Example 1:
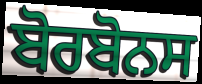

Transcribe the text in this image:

ਬੋਰਬੋਨਸ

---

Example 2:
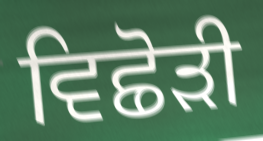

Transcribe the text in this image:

ਵਿਛੋੜੀ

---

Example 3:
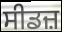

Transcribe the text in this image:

ਸੀਡਜ਼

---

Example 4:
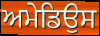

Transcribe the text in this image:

ਅਮੇਡਿਉਸ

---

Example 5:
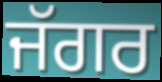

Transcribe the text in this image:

ਜੱਗਰ